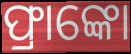
ଫ୍ରାଙ୍କୋ